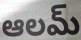
ఆలమ్